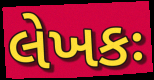
લેખકઃ